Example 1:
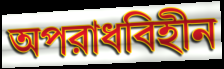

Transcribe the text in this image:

অপরাধবিহীন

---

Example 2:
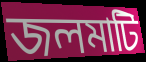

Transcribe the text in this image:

জলমাটি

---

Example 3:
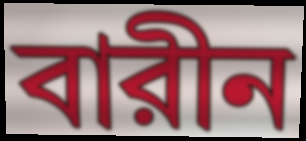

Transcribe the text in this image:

বারীন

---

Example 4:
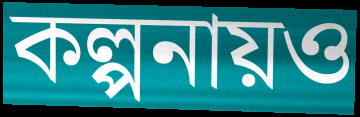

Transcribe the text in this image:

কল্পনায়ও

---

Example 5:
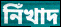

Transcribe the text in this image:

নিঁখাদ